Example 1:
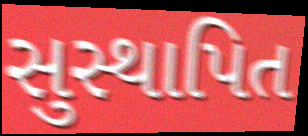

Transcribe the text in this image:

સુસ્થાપિત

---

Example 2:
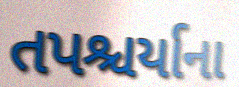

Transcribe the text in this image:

તપશ્ચર્યાના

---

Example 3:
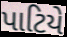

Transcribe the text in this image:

પાટિયે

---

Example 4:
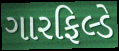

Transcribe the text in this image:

ગારફિલ્ડે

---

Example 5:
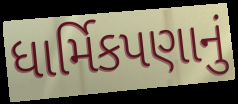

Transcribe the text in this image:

ધાર્મિકપણાનું